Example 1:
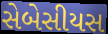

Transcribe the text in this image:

સેબેસીયસ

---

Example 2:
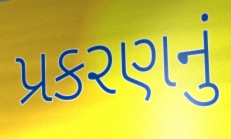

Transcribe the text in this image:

પ્રકરણનું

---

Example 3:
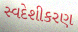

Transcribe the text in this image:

સ્વદેશીકરણ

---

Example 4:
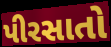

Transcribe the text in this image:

પીરસાતો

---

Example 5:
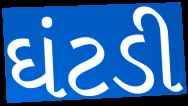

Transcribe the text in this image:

ઘંટડી